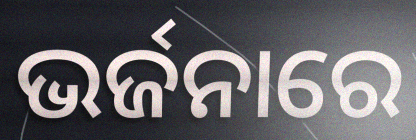
ଭର୍ଜନାରେ